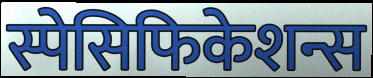
स्पेसिफिकेशन्स